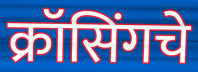
क्रॉसिंगचे